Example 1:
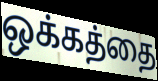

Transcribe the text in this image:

ஒக்கத்தை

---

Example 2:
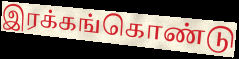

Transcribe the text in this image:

இரக்கங்கொண்டு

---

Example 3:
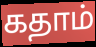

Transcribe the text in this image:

கதாம்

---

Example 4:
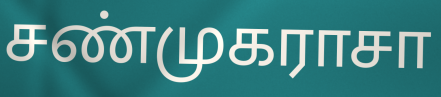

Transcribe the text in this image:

சண்முகராசா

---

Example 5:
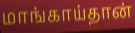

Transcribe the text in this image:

மாங்காய்தான்